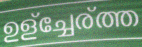
ഉള്ച്ചേര്ത്ത